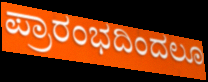
ಪ್ರಾರಂಭದಿಂದಲೂ